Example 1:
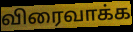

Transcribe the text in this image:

விரைவாக்க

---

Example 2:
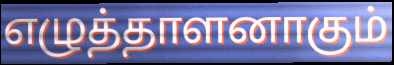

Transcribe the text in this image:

எழுத்தாளனாகும்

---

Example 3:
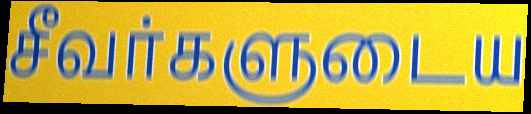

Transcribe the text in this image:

சீவர்களுடைய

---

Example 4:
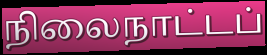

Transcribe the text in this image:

நிலைநாட்டப்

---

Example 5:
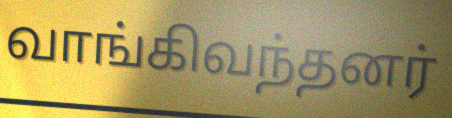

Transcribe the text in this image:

வாங்கிவந்தனர்